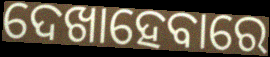
ଦେଖାହେବାରେ